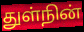
துள்நின்